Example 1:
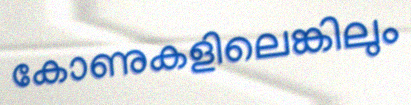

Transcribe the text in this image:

കോണുകളിലെങ്കിലും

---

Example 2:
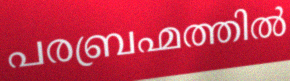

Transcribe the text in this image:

പരബ്രഹ്മത്തിൽ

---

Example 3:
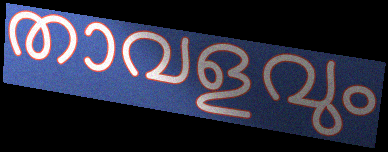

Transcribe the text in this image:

താവളവും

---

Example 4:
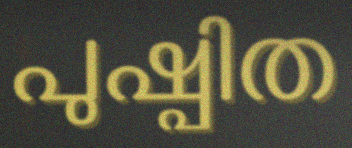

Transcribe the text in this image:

പുഷ്പിത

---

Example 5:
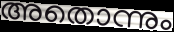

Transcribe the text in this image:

അതൊന്നും